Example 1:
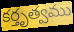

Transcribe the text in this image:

కర్తృత్వము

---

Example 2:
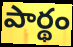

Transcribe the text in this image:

పార్థం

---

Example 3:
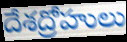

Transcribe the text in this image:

దేశద్రోహులు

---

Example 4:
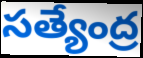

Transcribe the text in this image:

సత్యేంద్ర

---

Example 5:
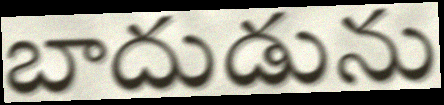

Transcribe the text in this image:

బాదుడును